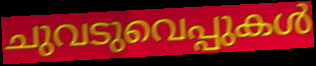
ചുവടുവെപ്പുകൾ